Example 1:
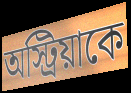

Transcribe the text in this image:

অস্ট্রিয়াকে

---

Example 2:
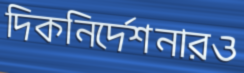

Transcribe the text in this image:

দিকনির্দেশনারও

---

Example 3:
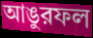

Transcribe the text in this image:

আঙুরফল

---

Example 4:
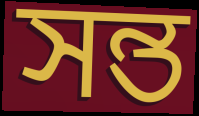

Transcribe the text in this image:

সন্ত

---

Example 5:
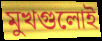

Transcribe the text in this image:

মুখগুলোই